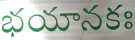
భయానకః